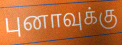
புனாவுக்கு